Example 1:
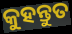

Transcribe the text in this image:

କୁହନ୍ତୁତ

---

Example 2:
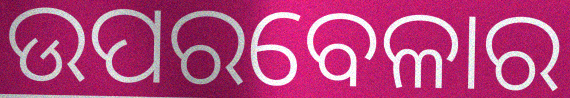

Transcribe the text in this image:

ଉପରବେଳାର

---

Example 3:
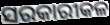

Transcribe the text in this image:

ସରକାରୀକଳ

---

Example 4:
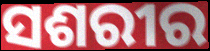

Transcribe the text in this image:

ସଶରୀର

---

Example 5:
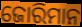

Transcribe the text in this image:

ଜୋରିମାନ